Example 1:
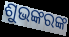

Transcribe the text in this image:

ଶୁଭଙ୍କରଙ୍କ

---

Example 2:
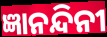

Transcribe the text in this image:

ଜ୍ଞାନନ୍ଦିନୀ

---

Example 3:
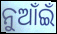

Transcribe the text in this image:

ନୁଆଁଇଁ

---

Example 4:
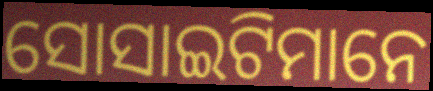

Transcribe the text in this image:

ସୋସାଇଟିମାନେ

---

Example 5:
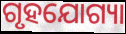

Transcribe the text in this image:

ଗୃହଯୋଗ୍ୟା